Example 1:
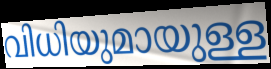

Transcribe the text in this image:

വിധിയുമായുള്ള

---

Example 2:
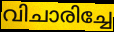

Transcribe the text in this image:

വിചാരിച്ചേ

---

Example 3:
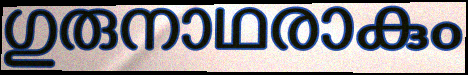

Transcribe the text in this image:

ഗുരുനാഥരാകും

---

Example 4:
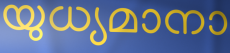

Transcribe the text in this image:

യുധ്യമാനാ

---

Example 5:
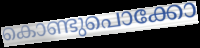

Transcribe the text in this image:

കൊണ്ടുപൊക്കോ